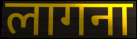
लागना